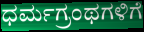
ಧರ್ಮಗ್ರಂಥಗಳಿಗೆ